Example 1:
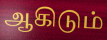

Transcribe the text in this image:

ஆகிடும்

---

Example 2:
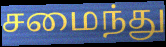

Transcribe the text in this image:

சமைந்து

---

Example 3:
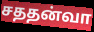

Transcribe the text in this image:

சததன்வா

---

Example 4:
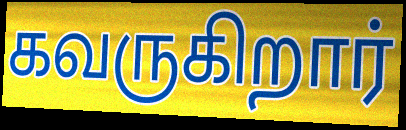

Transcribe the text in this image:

கவருகிறார்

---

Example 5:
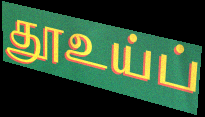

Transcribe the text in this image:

தூஉய்ப்